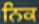
ਨਿਕ